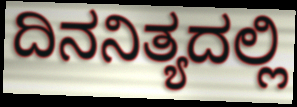
ದಿನನಿತ್ಯದಲ್ಲಿ